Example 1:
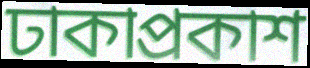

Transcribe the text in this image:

ঢাকাপ্রকাশ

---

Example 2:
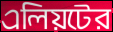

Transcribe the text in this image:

এলিয়টের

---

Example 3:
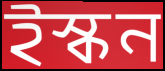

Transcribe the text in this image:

ইস্কন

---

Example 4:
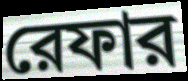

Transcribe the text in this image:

রেফার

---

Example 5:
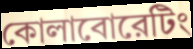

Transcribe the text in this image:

কোলাবোরেটিং